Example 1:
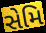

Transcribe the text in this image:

સેમિ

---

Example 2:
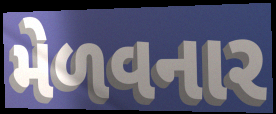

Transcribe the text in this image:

મેળવનાર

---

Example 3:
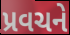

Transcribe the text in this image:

પ્રવચને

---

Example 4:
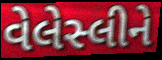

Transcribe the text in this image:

વેલેસ્લીને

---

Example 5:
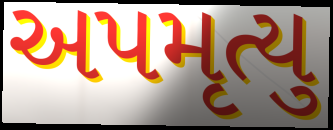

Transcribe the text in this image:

અપમૃત્યુ